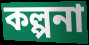
কল্পনা